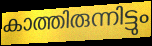
കാത്തിരുന്നിട്ടും